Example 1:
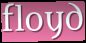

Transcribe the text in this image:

floyd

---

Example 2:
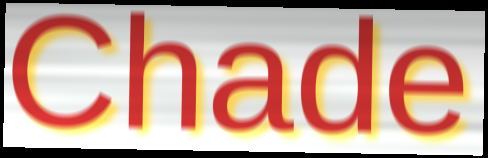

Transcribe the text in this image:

Chade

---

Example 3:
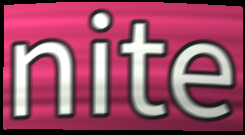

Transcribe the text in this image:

nite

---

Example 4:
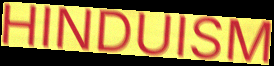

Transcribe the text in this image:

HINDUISM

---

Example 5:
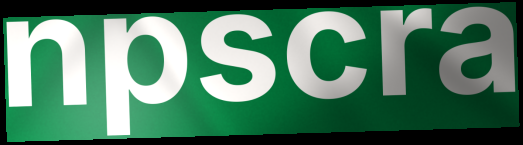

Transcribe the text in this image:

npscra